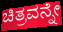
ಚಿತ್ರವನ್ನೇ